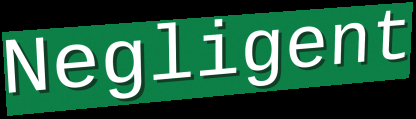
Negligent